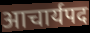
आचार्यपद